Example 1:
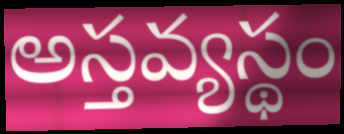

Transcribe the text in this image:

అస్తవ్యస్థం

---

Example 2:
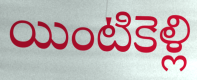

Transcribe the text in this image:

యింటికెళ్లి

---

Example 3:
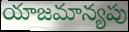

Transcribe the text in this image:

యాజమాన్యపు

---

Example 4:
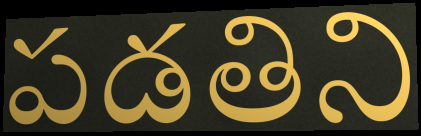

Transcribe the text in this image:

పడతిని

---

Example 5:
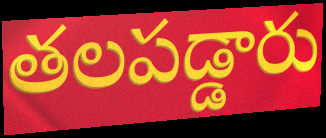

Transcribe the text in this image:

తలపడ్డారు